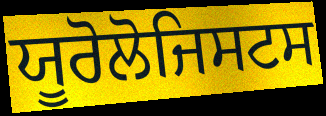
ਯੂਰੋਲੋਜਿਸਟਸ